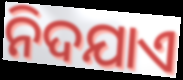
ନିଦଯାଏ